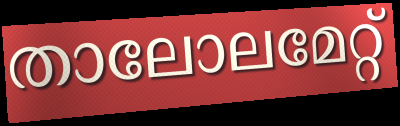
താലോലമേറ്റ്